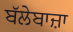
ਬੱਲੇਬਾਜ਼ਾ